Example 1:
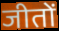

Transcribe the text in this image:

जीतों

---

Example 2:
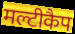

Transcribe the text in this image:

मल्‍टीकैप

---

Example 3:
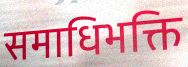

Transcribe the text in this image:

समाधिभक्ति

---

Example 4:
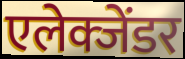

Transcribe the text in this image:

एलेक्‍जेंडर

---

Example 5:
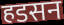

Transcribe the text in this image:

हडसन